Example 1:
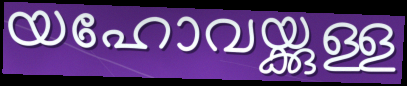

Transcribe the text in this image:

യഹോവയ്ക്കുള്ള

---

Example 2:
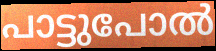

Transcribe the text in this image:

പാട്ടുപോൽ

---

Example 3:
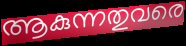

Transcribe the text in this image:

ആകുന്നതുവരെ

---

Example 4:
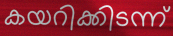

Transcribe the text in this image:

കയറിക്കിടന്ന്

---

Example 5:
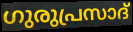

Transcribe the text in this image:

ഗുരുപ്രസാദ്